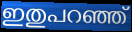
ഇതുപറഞ്ഞ്